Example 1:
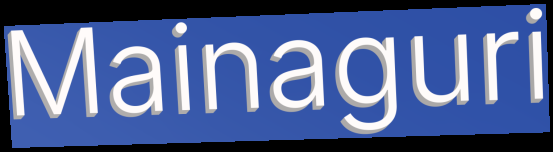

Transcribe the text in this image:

Mainaguri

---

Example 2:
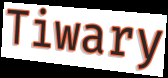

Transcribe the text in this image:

Tiwary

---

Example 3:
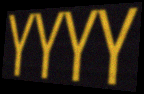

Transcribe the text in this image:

YYYY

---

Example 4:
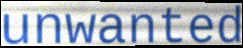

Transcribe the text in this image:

unwanted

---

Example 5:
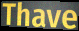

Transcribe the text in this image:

Thave